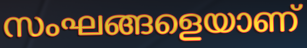
സംഘങ്ങളെയാണ്